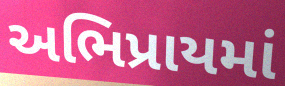
અભિપ્રાયમાં